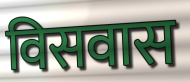
विसवास